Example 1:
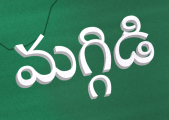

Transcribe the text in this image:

మగ్గిడి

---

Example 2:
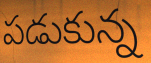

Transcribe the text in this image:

పడుకున్న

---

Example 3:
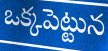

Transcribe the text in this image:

ఒక్కపెట్టున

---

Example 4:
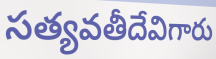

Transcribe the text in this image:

సత్యవతీదేవిగారు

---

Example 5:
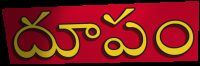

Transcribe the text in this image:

దూపం